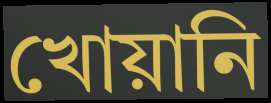
খোয়ানি